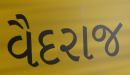
વૈદરાજ